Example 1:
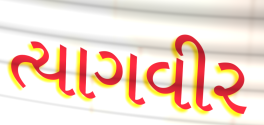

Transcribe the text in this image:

ત્યાગવીર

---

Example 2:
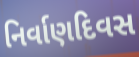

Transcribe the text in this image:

નિર્વાણદિવસ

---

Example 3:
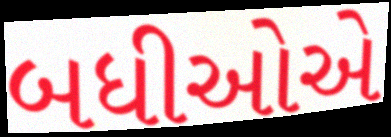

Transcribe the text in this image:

બધીઓએ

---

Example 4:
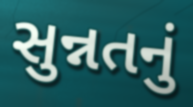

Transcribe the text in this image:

સુન્નતનું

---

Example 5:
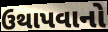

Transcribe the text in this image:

ઉથાપવાનો